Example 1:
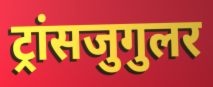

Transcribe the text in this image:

ट्रांसजुगुलर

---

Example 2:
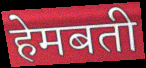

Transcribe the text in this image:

हेमबती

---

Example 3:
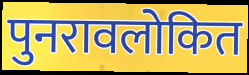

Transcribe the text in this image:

पुनरावलोकित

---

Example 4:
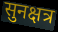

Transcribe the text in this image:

सुनक्षत्र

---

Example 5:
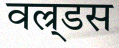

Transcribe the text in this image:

वल्र्डस